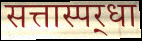
सत्तास्पर्धा